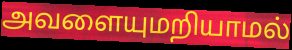
அவளையுமறியாமல்